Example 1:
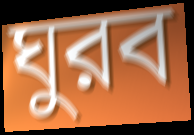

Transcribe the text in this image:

ঘুরব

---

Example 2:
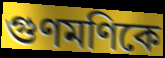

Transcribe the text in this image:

গুণমণিকে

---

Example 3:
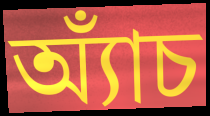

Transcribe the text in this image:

অ্যাঁচ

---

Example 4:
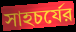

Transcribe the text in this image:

সাহচর্যের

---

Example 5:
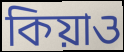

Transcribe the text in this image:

কিয়াও